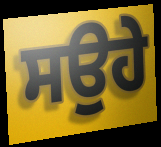
ਸਉਹੇ